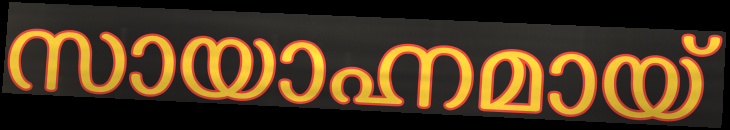
സായാഹ്നമായ്